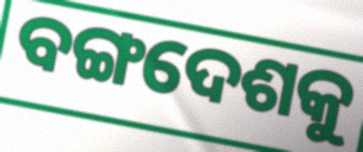
ବଙ୍ଗଦେଶକୁ